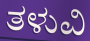
ತಳುವಿ